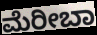
ಮೆರೀಬಾ